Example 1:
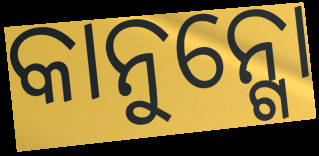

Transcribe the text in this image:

କାନୁନ୍ଗୋ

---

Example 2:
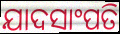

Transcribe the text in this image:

ଯାଦସାଂପତି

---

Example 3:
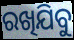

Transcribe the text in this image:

ରଖିଯିବୁ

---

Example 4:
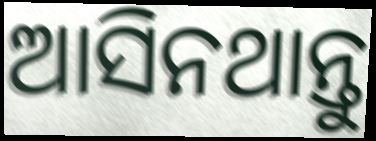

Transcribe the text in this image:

ଆସିନଥାନ୍ତୁ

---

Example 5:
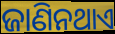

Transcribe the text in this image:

ଜାଣିନଥାଏ